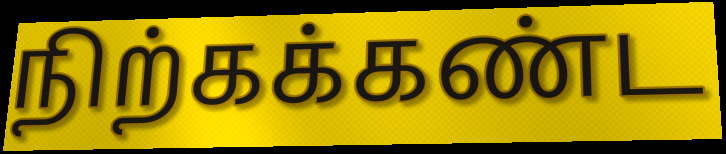
நிற்கக்கண்ட